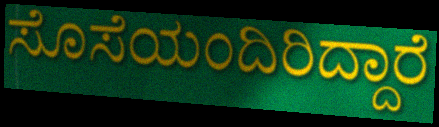
ಸೊಸೆಯಂದಿರಿದ್ದಾರೆ